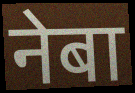
नेबा